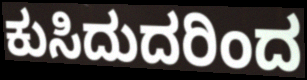
ಕುಸಿದುದರಿಂದ